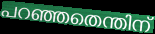
പറഞ്ഞതെന്തിന്